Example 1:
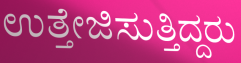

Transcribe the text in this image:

ಉತ್ತೇಜಿಸುತ್ತಿದ್ದರು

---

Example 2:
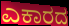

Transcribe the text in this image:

ಎಕಾರದ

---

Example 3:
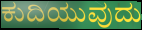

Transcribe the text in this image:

ಕುದಿಯುವುದು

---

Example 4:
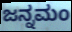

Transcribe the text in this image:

ಜನ್ನಮಂ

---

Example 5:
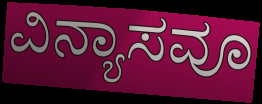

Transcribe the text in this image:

ವಿನ್ಯಾಸವೂ